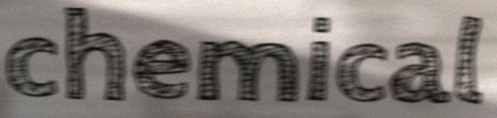
chemical